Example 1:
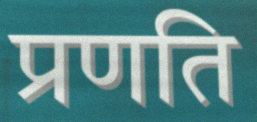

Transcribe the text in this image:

प्रणति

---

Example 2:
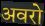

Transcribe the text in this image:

अवरो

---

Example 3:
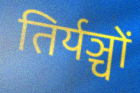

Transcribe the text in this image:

तिर्यञ्चों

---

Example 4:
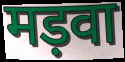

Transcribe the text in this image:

मड़वा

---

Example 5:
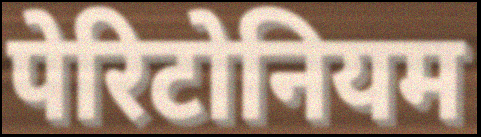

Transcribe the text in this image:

पेरिटोनियम